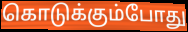
கொடுக்கும்போது